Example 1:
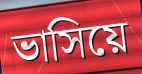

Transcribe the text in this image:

ভাসিয়ে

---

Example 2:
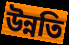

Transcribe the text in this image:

উন্নতি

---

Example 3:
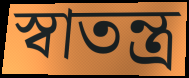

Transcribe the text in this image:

স্বাতন্ত্র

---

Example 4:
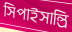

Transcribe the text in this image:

সিপাইসান্ত্রি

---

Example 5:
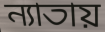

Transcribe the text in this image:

ন্যাতায়